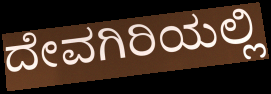
ದೇವಗಿರಿಯಲ್ಲಿ